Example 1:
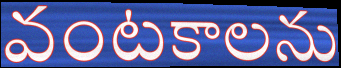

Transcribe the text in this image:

వంటకాలను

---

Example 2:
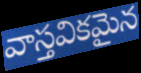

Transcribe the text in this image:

వాస్తవికమైన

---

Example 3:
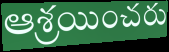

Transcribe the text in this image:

ఆశ్రయించరు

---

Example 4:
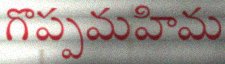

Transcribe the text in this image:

గొప్పమహిమ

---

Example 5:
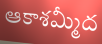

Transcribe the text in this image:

ఆకాశమ్మీద